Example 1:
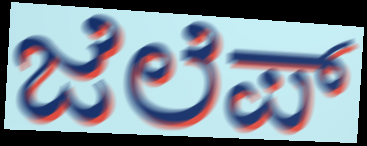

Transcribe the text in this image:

ಜೆಲೆಪ್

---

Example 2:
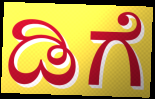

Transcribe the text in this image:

ಡಿಗೆ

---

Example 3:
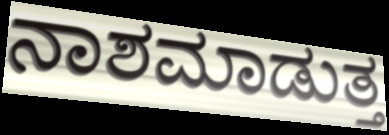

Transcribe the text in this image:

ನಾಶಮಾಡುತ್ತ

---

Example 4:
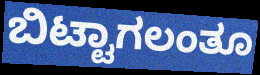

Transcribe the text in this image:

ಬಿಟ್ಟಾಗಲಂತೂ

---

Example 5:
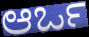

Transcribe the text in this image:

ಆರ್ಒ